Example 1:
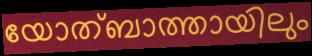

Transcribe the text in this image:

യോത്ബാത്തായിലും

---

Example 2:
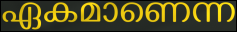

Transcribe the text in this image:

ഏകമാണെന്ന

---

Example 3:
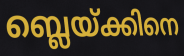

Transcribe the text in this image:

ബ്ലെയ്ക്കിനെ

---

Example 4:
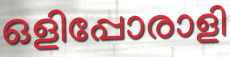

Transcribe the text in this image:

ഒളിപ്പോരാളി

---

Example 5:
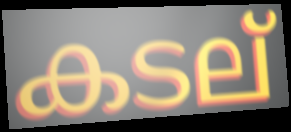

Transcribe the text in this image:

കടല്